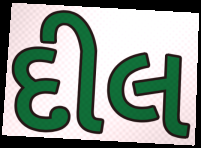
દીલ